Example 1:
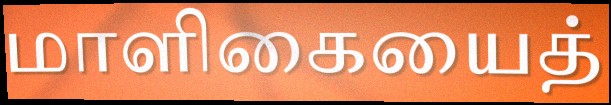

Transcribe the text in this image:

மாளிகையைத்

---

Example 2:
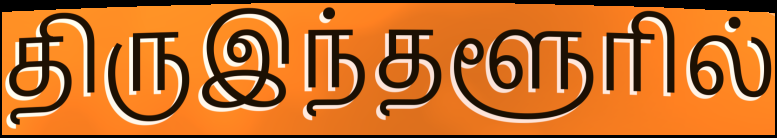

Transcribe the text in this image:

திருஇந்தளூரில்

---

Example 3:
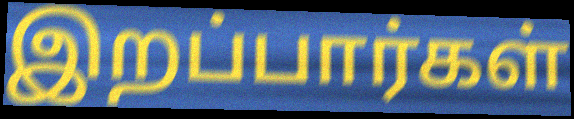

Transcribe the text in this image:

இறப்பார்கள்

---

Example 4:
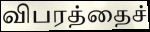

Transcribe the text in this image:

விபரத்தைச்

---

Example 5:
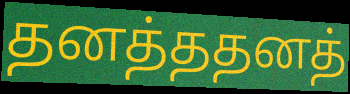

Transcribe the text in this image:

தனத்ததனத்